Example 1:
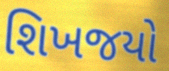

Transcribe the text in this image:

શિખજયો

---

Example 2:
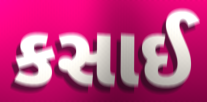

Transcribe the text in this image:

કસાઈ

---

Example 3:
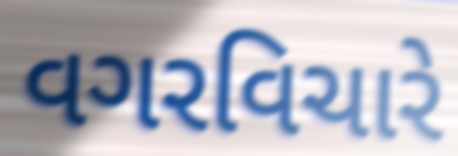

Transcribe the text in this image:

વગરવિચારે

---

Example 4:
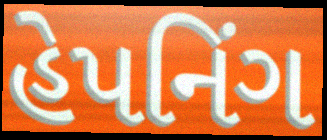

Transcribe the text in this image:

હેપનિંગ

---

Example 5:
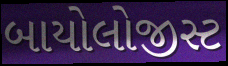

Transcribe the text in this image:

બાયોલોજીસ્ટ